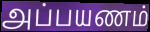
அப்பயணம்